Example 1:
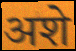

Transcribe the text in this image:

अशे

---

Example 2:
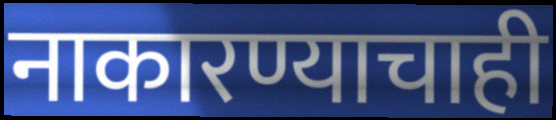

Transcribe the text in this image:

नाकारण्याचाही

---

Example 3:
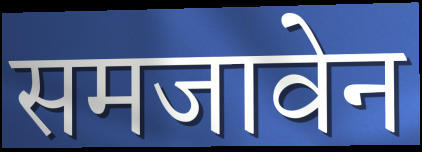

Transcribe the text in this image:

समजावेन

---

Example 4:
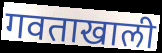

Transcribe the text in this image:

गवताखाली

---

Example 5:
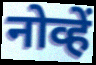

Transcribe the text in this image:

नोव्हें